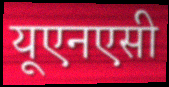
यूएनएसी